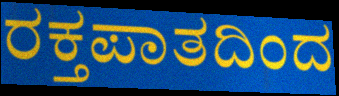
ರಕ್ತಪಾತದಿಂದ